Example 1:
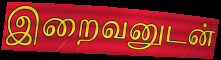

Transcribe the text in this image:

இறைவனுடன்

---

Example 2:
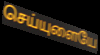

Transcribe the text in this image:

செய்யுளையே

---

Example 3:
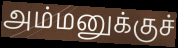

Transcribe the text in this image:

அம்மனுக்குச்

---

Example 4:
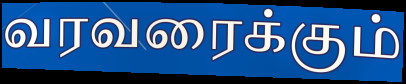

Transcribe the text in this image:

வரவரைக்கும்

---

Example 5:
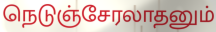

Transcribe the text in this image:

நெடுஞ்சேரலாதனும்